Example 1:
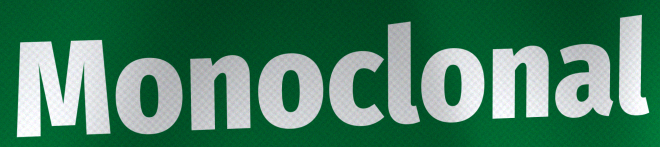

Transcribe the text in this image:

Monoclonal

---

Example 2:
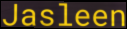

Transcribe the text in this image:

Jasleen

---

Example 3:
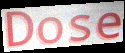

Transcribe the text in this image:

Dose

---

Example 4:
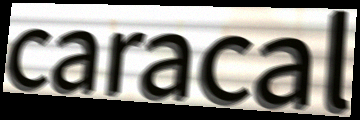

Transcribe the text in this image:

caracal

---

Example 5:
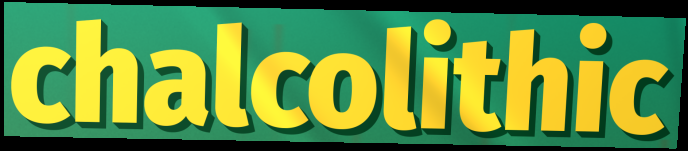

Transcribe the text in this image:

chalcolithic